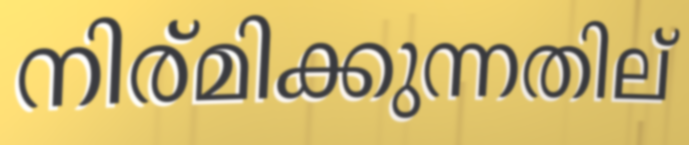
നിര്മിക്കുന്നതില്